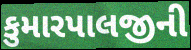
કુમારપાલજીની